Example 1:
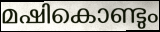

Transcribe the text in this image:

മഷികൊണ്ടും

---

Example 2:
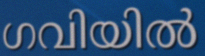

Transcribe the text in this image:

ഗവിയിൽ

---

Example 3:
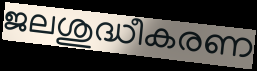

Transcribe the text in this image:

ജലശുദ്ധീകരണ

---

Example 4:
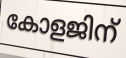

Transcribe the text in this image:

കോളജിന്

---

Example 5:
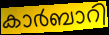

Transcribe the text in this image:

കാർബാറി